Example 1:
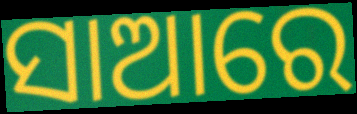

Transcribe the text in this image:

ସାଆରେ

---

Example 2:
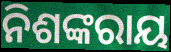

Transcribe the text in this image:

ନିଶଙ୍କରାୟ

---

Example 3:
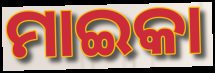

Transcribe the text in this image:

ମାଇକା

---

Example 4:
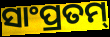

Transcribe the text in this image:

ସାଂପ୍ରତମ୍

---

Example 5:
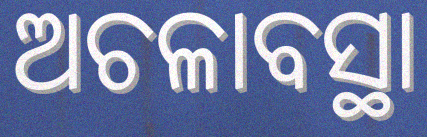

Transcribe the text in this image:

ଅଚଳାବସ୍ଥା